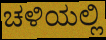
ಚಳಿಯಲ್ಲಿ